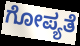
ಗೋಪ್ಯತೆ